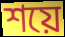
শয়ে